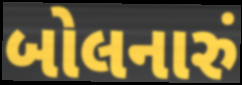
બોલનારું